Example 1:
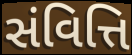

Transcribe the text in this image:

સંવિત્તિ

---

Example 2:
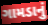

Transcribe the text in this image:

ગામડાનું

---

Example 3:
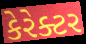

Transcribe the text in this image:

કેરેક્ટર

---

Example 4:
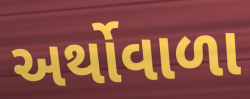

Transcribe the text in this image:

અર્થોવાળા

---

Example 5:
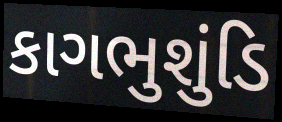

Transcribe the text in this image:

કાગભુશુંડિ